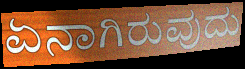
ಏನಾಗಿರುವುದು